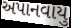
અપાનવાયુ